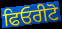
ਫਿਓਰੀਟੋ